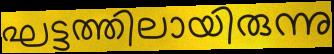
ഘട്ടത്തിലായിരുന്നു